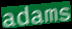
adams